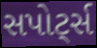
સપોર્ટ્સ